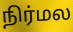
நிர்மல